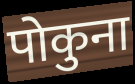
पोकुना